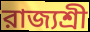
রাজ্যশ্রী